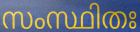
സംസ്ഥിതഃ